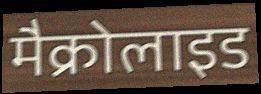
मैक्रोलाइड